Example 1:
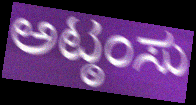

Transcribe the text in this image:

ಅಟ್ಠಂಸು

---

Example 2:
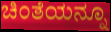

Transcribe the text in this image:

ಚಿಂತೆಯನ್ನೂ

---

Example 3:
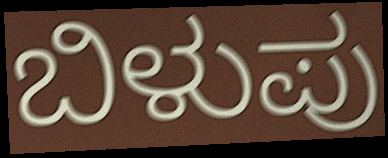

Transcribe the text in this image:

ಬಿಳುಪು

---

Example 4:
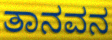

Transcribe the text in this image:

ತಾನವನ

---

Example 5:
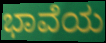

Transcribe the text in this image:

ಭಾವೆಯ